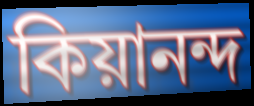
কিয়ানন্দ